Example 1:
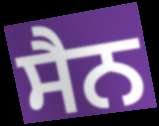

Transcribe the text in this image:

ਸੈਨ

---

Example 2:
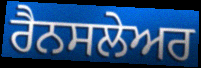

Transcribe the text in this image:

ਰੈਨਸਲੇਅਰ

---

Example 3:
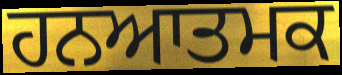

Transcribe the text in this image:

ਹਨਆਤਮਕ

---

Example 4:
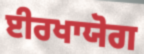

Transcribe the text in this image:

ਈਰਖਾਯੋਗ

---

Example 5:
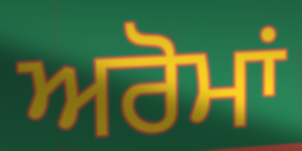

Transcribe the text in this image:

ਅਰੋਮਾਂ